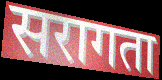
सरागता